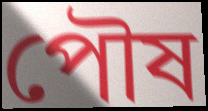
পৌষ